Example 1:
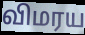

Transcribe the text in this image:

விமரய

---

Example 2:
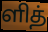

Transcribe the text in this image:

ளித்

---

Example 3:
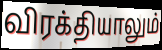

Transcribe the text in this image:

விரக்தியாலும்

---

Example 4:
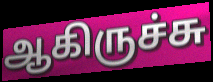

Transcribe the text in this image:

ஆகிருச்சு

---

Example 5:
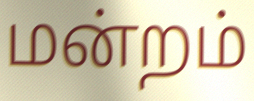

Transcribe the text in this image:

மன்றம்